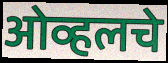
ओव्हलचे